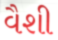
વૈશી